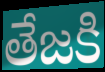
తేజకి